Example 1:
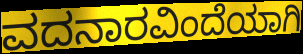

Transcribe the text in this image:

ವದನಾರವಿಂದೆಯಾಗಿ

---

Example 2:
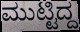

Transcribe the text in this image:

ಮುಟ್ಟಿದ್ದ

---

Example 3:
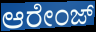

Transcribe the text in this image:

ಆರೇಂಜ್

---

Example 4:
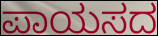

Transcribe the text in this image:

ಪಾಯಸದ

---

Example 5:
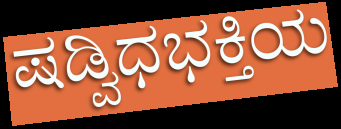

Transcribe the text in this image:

ಷಡ್ವಿಧಭಕ್ತಿಯ